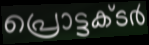
പ്രൊട്ടക്ടർ